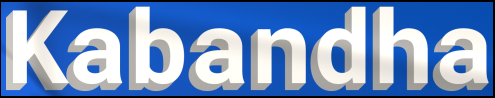
Kabandha